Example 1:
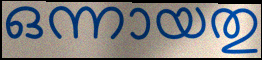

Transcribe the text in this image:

ഒന്നായതു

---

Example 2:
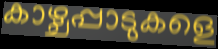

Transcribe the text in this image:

കാഴ്ചപ്പാടുകളെ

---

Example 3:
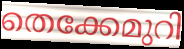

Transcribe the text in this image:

തെക്കേമുറി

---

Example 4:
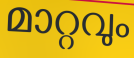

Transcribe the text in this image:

മാറ്റവും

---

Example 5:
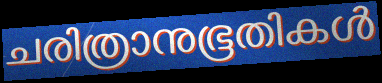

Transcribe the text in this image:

ചരിത്രാനുഭൂതികൾ